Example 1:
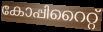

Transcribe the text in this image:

കോപ്പിറൈറ്റ്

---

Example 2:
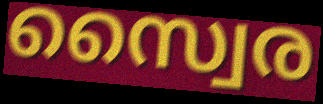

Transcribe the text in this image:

സ്വൈര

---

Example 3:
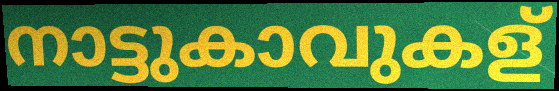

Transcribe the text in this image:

നാട്ടുകാവുകള്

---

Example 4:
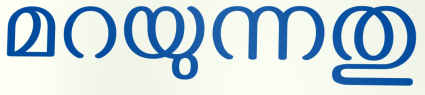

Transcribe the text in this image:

മറയുന്നതു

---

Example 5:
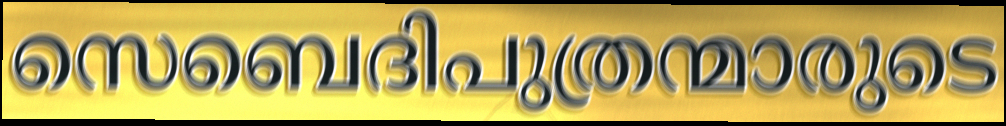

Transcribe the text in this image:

സെബെദിപുത്രന്മാരുടെ